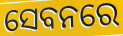
ସେବନରେ